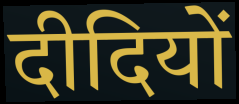
दीदियों